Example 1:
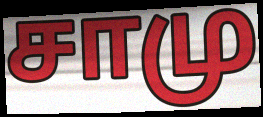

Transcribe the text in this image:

சாமு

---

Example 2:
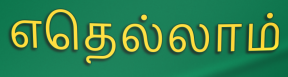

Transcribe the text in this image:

எதெல்லாம்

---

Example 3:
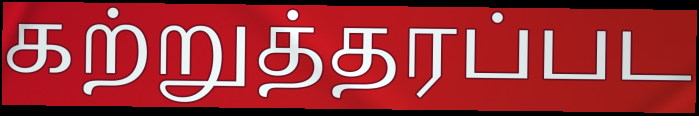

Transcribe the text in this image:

கற்றுத்தரப்பட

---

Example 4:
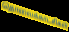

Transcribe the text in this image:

தொலைக்காட்சிகள்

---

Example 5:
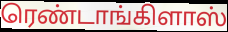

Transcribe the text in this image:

ரெண்டாங்கிளாஸ்